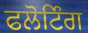
ਫਲੋਟਿੰਗ